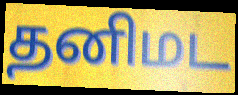
தனிமட